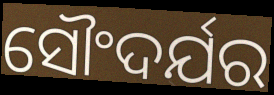
ସୌଂଦର୍ଯର